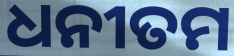
ଧନୀତମ